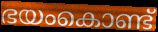
ഭയംകൊണ്ട്